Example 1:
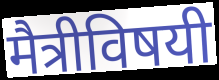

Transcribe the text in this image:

मैत्रीविषयी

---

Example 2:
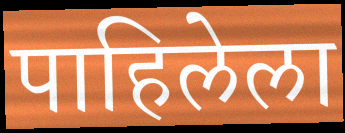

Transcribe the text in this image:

पाहिलेला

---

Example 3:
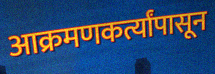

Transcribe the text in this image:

आक्रमणकर्त्यांपासून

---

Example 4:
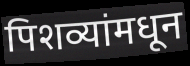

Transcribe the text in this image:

पिशव्यांमधून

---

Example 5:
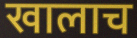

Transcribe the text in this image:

खालाच